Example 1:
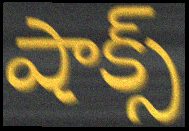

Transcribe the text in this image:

షాక్స్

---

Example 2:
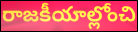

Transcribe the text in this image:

రాజకీయాల్లోంచి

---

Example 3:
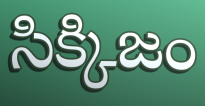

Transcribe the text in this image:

సిక్కిజం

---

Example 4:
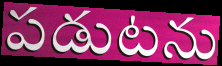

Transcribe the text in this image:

పడుటను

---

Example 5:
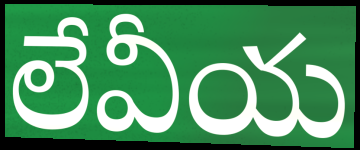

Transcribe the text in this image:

లేవీయ